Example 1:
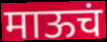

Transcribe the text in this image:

माऊचं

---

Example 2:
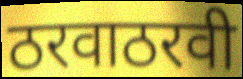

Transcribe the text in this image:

ठरवाठरवी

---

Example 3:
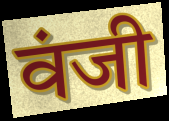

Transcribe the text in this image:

वंजी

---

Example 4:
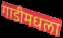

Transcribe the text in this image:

गाडीमधला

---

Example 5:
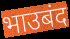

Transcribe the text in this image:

भाउबंद